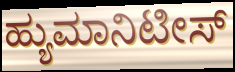
ಹ್ಯುಮಾನಿಟೀಸ್